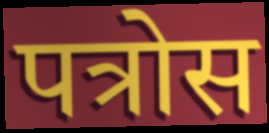
पत्रोस